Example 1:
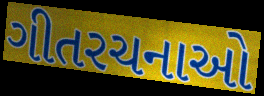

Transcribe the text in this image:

ગીતરચનાઓ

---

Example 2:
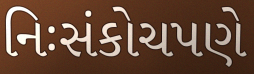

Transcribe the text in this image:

નિઃસંકોચપણે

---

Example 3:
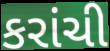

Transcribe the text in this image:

કરાંચી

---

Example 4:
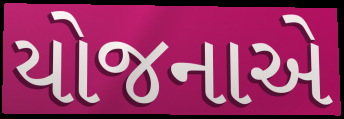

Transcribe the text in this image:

યોજનાએ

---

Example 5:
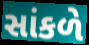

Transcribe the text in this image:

સાંકળે